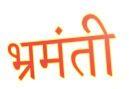
भ्रमंती